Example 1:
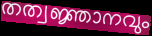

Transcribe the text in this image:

തത്വജ്ഞാനവും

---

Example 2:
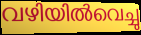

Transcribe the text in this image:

വഴിയിൽവെച്ചു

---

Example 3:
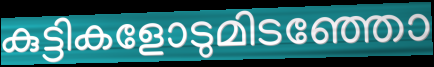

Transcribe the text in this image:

കുട്ടികളോടുമിടഞ്ഞോ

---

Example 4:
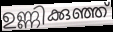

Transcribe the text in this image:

ഉണ്ണിക്കുഞ്ഞ്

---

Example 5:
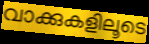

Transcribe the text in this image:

വാക്കുകളിലൂടെ